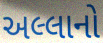
અલ્લાનો